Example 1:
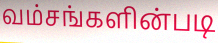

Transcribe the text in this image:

வம்சங்களின்படி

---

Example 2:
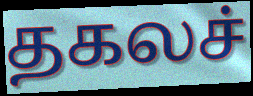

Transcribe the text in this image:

தகலச்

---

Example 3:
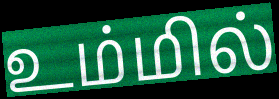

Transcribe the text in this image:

உம்மில்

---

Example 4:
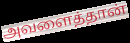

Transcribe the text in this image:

அவளைத்தான்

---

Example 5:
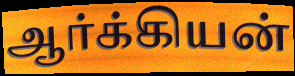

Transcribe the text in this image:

ஆர்க்கியன்